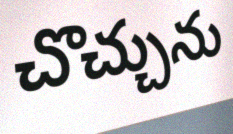
చొచ్చును